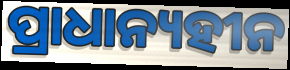
ପ୍ରାଧାନ୍ୟହୀନ